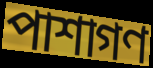
পাশাগণ